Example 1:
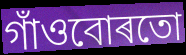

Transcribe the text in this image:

গাঁওবোৰতো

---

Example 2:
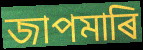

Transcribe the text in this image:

জাপমাৰি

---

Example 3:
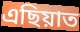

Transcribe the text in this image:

এছিয়াত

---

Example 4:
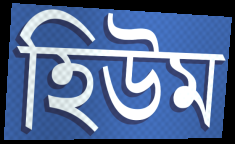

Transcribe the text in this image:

হিউম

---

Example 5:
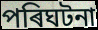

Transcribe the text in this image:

পৰিঘটনা